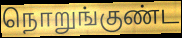
நொறுங்குண்ட